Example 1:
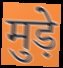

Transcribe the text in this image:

मुड़े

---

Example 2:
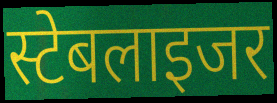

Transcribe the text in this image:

स्टेबलाइजर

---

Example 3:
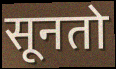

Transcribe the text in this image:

सूनतो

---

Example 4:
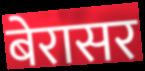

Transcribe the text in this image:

बेरासर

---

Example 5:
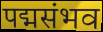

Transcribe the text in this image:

पद्मसंभव